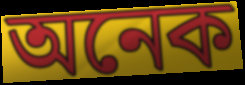
অনেক